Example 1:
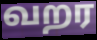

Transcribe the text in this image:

வறர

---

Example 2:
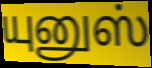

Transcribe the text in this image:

யுனுஸ்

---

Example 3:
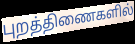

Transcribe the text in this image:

புறத்திணைகளில்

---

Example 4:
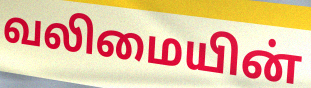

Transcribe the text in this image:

வலிமையின்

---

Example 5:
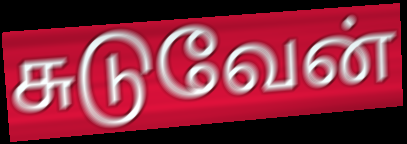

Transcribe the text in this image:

சுடுவேன்